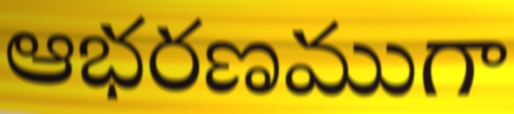
ఆభరణముగా